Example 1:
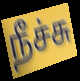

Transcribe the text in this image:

நீச்சு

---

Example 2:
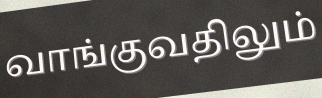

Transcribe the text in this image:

வாங்குவதிலும்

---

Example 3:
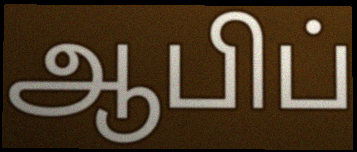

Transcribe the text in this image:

ஆபிப்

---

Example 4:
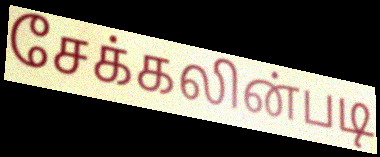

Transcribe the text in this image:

சேக்கலின்படி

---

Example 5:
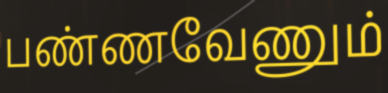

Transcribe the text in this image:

பண்ணவேணும்